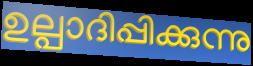
ഉല്പാദിപ്പിക്കുന്നു